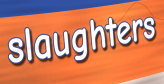
slaughters